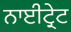
ਨਾਈਟ੍ਰੇਟ